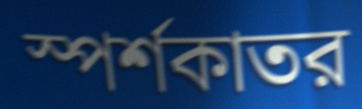
স্পর্শকাতর